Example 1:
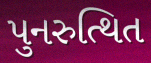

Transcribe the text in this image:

પુનરુત્થિત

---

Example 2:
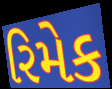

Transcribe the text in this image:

રિમેક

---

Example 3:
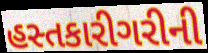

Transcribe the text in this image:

હસ્તકારીગરીની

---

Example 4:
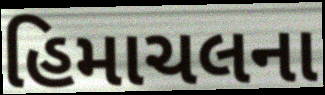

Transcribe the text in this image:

હિમાચલના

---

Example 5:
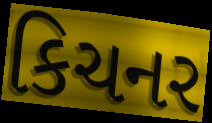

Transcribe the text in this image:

કિચનર